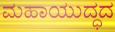
ಮಹಾಯುದ್ಧದ